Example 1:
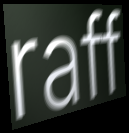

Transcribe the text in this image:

raff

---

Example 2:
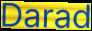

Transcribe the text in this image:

Darad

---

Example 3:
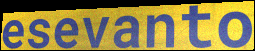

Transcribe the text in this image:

esevanto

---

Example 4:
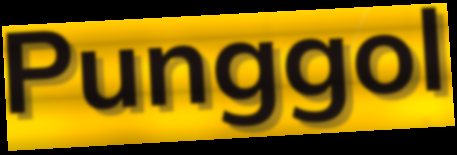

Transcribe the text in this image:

Punggol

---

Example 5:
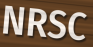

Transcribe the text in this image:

NRSC